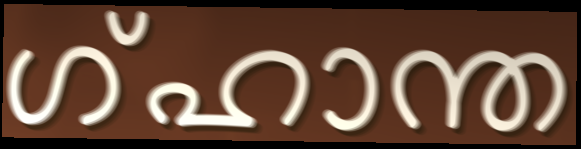
ഗ്ഹാന്ത